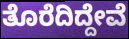
ತೊರೆದಿದ್ದೇವೆ